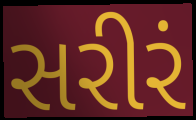
સરીરં